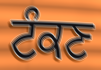
ਟੰਕਣ